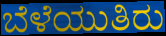
ಬೆಳೆಯುತಿರು